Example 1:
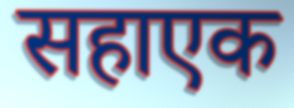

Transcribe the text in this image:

सहाएक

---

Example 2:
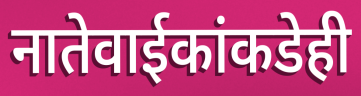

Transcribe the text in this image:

नातेवाईकांकडेही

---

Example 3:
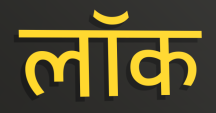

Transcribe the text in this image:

लॉक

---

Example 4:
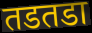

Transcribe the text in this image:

तडतडा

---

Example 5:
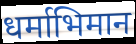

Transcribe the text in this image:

धर्माभिमान